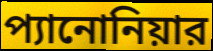
প্যানোনিয়ার